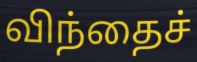
விந்தைச்